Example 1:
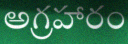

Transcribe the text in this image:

అగ్రహారం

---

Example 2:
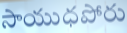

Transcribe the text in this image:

సాయుధపోరు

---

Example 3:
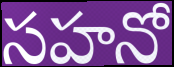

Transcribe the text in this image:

సహనో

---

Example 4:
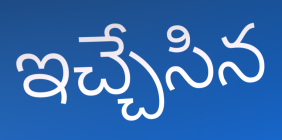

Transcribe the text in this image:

ఇచ్చేసిన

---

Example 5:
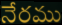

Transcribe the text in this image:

నేరము